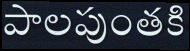
పాలపుంతకి